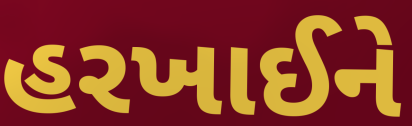
હરખાઈને